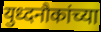
युध्दनौकांच्या